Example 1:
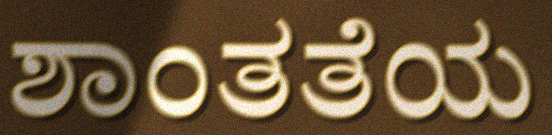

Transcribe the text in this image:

ಶಾಂತತೆಯ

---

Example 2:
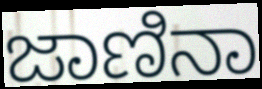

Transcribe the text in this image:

ಜಾಣಿನಾ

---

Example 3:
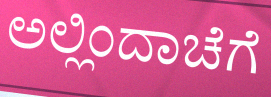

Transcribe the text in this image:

ಅಲ್ಲಿಂದಾಚೆಗೆ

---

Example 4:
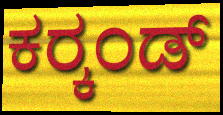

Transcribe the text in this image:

ಕರ್‍ಕಂಡ್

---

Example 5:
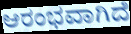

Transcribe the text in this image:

ಆರಂಭವಾಗಿದೆ